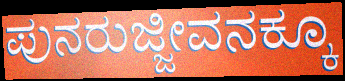
ಪುನರುಜ್ಜೀವನಕ್ಕೂ